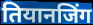
तियानजिंग